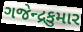
ગજેન્દ્રકુમાર